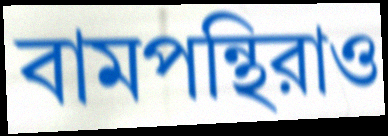
বামপন্থিরাও